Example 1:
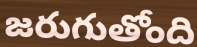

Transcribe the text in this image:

జరుగుతోంది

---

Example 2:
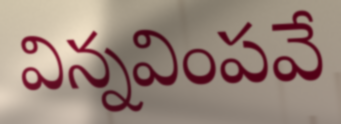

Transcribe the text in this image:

విన్నవింపవే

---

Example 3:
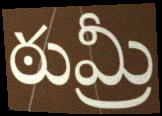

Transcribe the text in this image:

ఠుమ్రీ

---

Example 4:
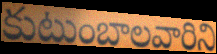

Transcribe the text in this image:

కుటుంబాలవారిని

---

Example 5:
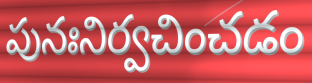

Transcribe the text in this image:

పునఃనిర్వచించడం